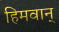
हिमवान्